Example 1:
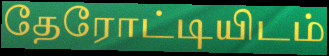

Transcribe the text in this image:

தேரோட்டியிடம்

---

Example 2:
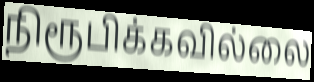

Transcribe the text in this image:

நிரூபிக்கவில்லை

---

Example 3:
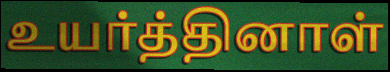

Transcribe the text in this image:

உயர்த்தினாள்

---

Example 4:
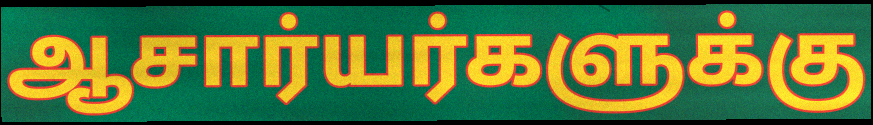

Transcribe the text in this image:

ஆசார்யர்களுக்கு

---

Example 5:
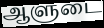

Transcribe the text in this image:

ஆளுடை